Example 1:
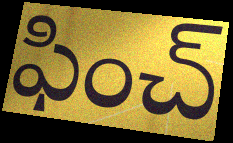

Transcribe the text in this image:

ఫించ్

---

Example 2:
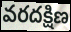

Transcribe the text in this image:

వరదక్షిణ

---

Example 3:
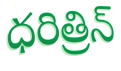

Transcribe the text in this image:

ధరిత్రిన్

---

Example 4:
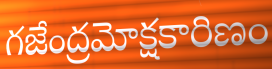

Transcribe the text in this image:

గజేంద్రమోక్షకారిణం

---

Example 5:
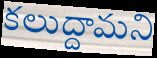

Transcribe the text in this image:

కలుద్దామని